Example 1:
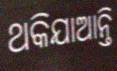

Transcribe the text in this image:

ଥକିଯାଆନ୍ତି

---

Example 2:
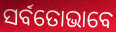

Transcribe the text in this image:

ସର୍ବତୋଭାବେ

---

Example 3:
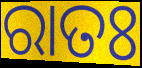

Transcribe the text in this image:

ରାତଃ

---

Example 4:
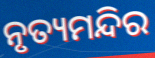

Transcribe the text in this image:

ନୃତ୍ୟମନ୍ଦିର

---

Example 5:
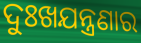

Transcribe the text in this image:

ଦୁଃଖଯନ୍ତ୍ରଣାର